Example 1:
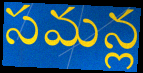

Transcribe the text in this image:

సమన్ల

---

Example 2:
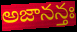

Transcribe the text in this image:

అజానన్తః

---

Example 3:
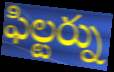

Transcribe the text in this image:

ఫిల్టర్ను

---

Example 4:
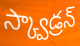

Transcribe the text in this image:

స్క్వాడ్రన్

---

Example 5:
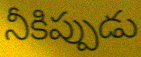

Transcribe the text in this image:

నీకిప్పుడు